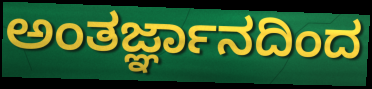
ಅಂತರ್ಜ್ಞಾನದಿಂದ